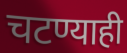
चटण्याही